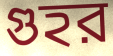
গুহর